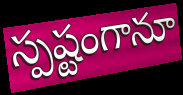
స్పష్టంగానూ